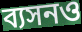
ব্যসনও